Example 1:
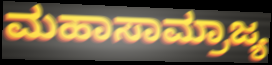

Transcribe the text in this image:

ಮಹಾಸಾಮ್ರಾಜ್ಯ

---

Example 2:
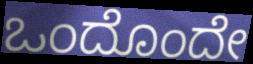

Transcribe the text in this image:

ಒಂದೊಂದೇ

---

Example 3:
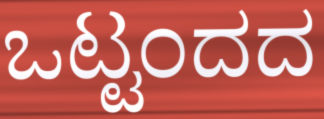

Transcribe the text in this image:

ಒಟ್ಟಂದದ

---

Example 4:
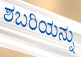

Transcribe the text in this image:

ಶಬರಿಯನ್ನು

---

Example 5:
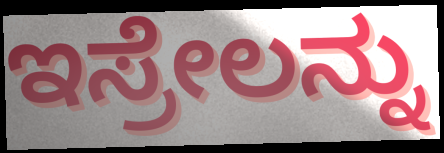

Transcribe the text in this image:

ಇಸ್ರೇಲನ್ನು